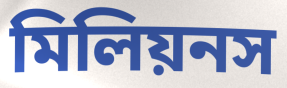
মিলিয়নস